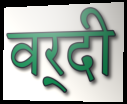
वर्दी